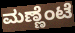
ಮಣ್ಣೆಂಟೆ